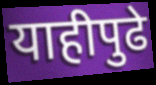
याहीपुढे